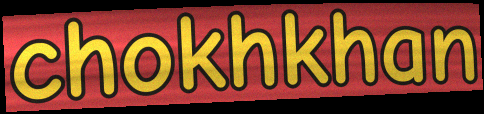
chokhkhan